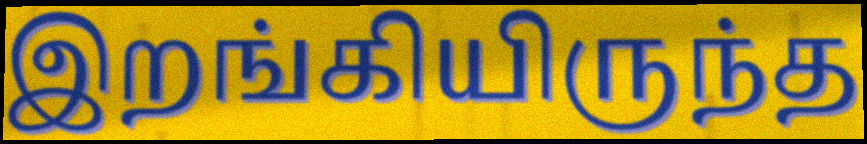
இறங்கியிருந்த